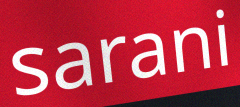
sarani